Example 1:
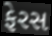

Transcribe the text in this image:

ફેરસ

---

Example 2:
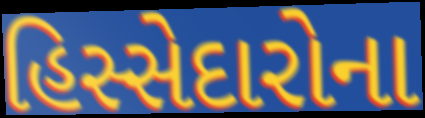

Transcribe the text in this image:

હિસ્સેદારોના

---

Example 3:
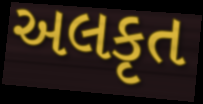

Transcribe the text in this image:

અલકૃત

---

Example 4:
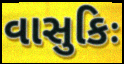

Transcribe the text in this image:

વાસુકિઃ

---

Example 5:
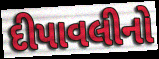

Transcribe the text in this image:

દીપાવલીનો